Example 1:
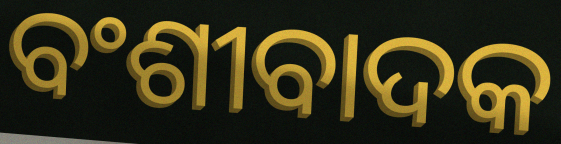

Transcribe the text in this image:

ବଂଶୀବାଦକ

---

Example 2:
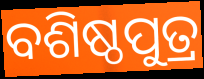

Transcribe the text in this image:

ବଶିଷ୍ଠପୁତ୍ର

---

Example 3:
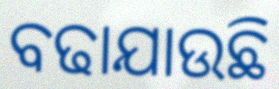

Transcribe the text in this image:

ବଢାଯାଉଛି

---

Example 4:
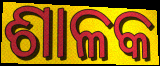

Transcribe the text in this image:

ଶାଳକ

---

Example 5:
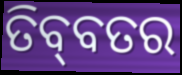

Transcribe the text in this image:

ତିବ୍‌ବତର